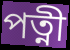
পত্নী